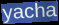
yacha